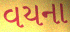
વયના